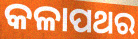
କଳାପଥର